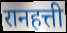
रानहत्ती